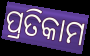
ପ୍ରତିକାମ